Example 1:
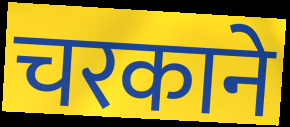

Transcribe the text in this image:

चरकाने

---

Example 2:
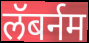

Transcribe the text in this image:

लॅबर्नम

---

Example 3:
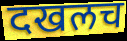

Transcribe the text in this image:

दखलच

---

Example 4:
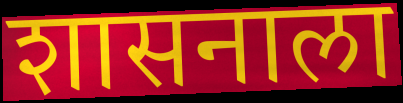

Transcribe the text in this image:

शासनाला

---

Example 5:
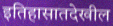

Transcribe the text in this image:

इतिहासातदेखील